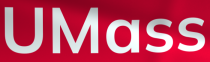
UMass